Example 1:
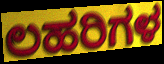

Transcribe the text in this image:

ಲಹರಿಗಳ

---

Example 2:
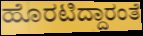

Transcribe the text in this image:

ಹೊರಟಿದ್ದಾರಂತೆ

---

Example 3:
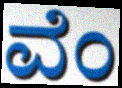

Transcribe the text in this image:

ವೆಂ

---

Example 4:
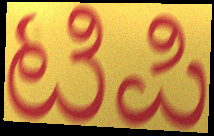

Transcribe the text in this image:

ಟಿಪಿ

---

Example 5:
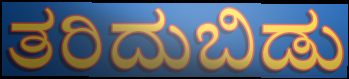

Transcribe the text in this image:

ತರಿದುಬಿಡು